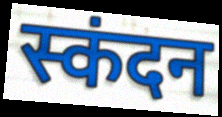
स्कंदन